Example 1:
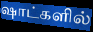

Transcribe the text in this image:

ஷாட்களில்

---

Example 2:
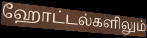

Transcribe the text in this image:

ஹோட்டல்களிலும்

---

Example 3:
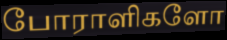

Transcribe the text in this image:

போராளிகளோ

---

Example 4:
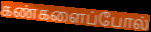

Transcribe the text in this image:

கண்களைப்போல்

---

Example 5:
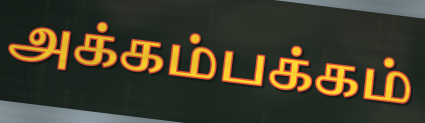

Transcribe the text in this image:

அக்கம்பக்கம்